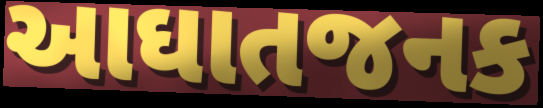
આઘાતજનક